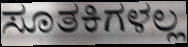
ಸೂತಕಿಗಳಲ್ಲ